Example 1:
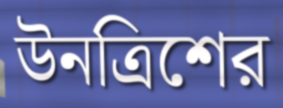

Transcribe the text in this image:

উনত্রিশের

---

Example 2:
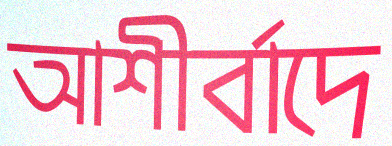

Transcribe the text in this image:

আশীর্বাদে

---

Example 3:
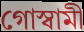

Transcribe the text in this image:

গোস্বামী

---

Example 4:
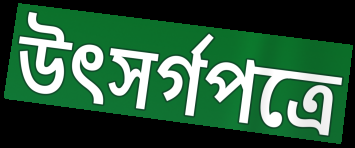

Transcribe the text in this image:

উৎসর্গপত্রে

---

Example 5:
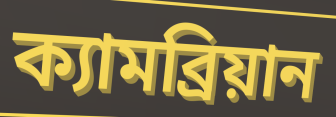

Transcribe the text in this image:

ক্যামব্রিয়ান